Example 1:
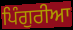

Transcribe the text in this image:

ਪਿੰਗੁਰੀਆ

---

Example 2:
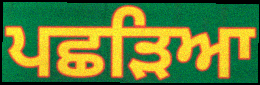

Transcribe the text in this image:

ਪਛੜਿਆ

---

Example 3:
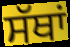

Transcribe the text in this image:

ਸੱਥਾਂ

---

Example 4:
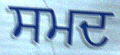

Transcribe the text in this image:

ਸਮਦ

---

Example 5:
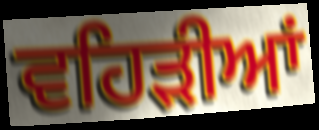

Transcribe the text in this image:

ਵਹਿੜੀਆਂ